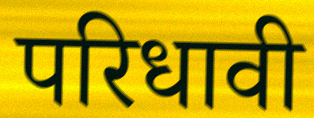
परिधावी